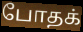
போதக்